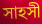
সাহসী